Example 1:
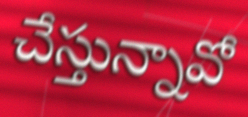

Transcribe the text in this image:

చేస్తున్నావో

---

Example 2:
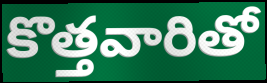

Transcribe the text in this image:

కొత్తవారితో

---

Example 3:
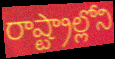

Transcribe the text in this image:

రాష్ట్రాల్లోని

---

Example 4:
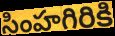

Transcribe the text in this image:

సింహగిరికి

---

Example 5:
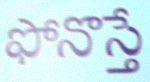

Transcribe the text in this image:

ఫోనొస్తే